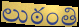
లుఠంతి